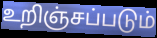
உறிஞ்சப்படும்